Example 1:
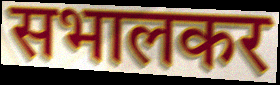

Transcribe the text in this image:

सभालकर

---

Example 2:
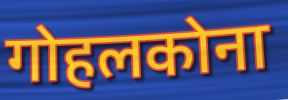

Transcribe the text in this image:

गोहलकोना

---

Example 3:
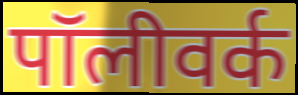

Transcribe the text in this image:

पॉलीवर्क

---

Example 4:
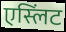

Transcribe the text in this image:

एस्लिंट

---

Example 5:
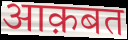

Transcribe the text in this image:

आक़बत